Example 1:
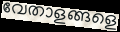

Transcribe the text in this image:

വേതാളങ്ങളെ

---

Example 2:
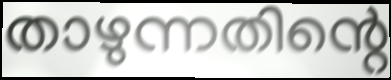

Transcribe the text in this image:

താഴുന്നതിന്റെ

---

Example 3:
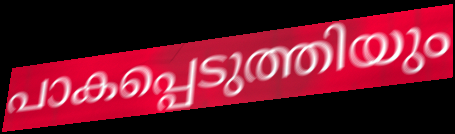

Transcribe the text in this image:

പാകപ്പെടുത്തിയും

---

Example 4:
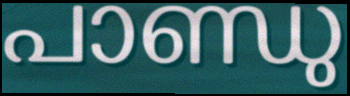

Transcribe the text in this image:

പാണ്ഡു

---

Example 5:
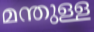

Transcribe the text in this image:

മന്തുള്ള